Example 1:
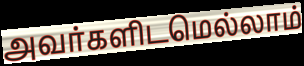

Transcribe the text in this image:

அவர்களிடமெல்லாம்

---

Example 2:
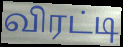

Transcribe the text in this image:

விரட்டி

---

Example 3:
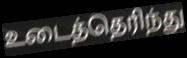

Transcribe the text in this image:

உடைத்தெரிந்து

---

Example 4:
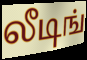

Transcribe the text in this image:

லீடிங்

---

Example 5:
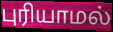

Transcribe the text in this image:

புரியாமல்